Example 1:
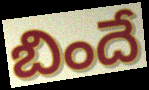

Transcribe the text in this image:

బిందే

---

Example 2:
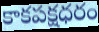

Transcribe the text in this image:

కాకపక్షధరం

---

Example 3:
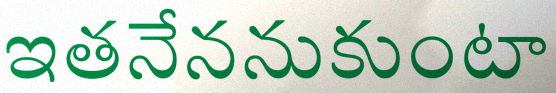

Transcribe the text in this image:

ఇతనేననుకుంటా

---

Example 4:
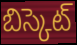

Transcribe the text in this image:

బిస్కెట్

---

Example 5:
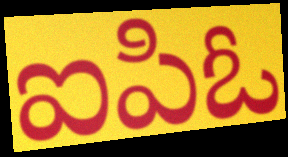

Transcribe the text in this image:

ఐపిఓ